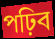
পঢ়িব